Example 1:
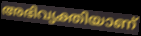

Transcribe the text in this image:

അഭിവ്യക്തിയാണ്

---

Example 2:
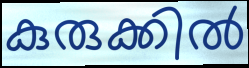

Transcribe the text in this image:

കുരുക്കിൽ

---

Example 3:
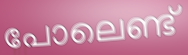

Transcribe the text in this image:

പോലെണ്ട്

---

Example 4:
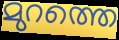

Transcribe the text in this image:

മുറത്തെ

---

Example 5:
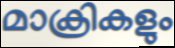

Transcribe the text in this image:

മാക്രികളും